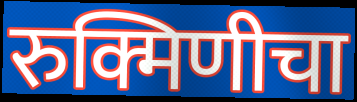
रुक्मिणीचा